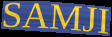
SAMJI